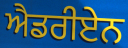
ਐਡਰੀਏਨ